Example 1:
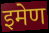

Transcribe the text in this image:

इमेण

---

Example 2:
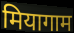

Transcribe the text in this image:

मियागाम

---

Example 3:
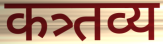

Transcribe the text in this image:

कत्र्तव्य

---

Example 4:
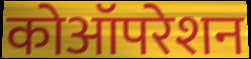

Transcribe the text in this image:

कोऑपरेशन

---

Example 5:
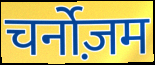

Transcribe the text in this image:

चर्नोज़म